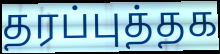
தரப்புத்தக